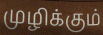
முழிக்கும்